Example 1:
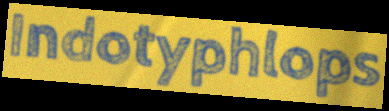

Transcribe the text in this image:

Indotyphlops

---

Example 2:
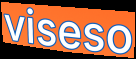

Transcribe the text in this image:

viseso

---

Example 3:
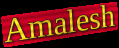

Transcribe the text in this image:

Amalesh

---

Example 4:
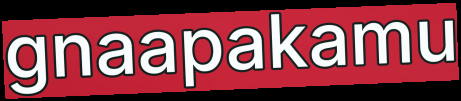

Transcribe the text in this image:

gnaapakamu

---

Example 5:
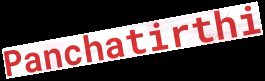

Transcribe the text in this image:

Panchatirthi